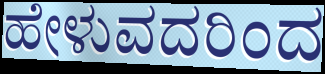
ಹೇಳುವದರಿಂದ